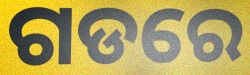
ଗଡରେ